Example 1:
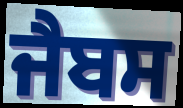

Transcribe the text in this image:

ਜੈਬਸ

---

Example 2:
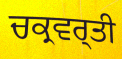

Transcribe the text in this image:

ਚਕ੍ਰਵਰ੍ਤੀ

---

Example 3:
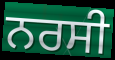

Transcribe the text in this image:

ਨਰਸੀ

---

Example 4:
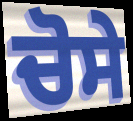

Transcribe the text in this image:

ਚੋਸੇ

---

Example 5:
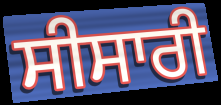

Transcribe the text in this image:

ਸੀਸਾਰੀ